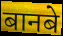
बानबे